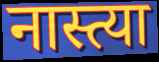
नास्त्या